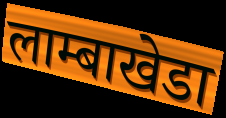
लाम्बाखेडा